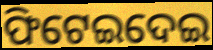
ଫିଟେଇଦେଇ